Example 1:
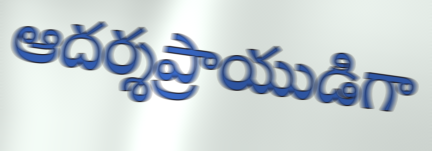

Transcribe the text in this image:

ఆదర్శప్రాయుడిగా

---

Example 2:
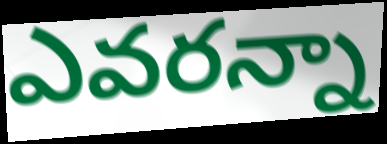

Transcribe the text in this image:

ఎవరన్నా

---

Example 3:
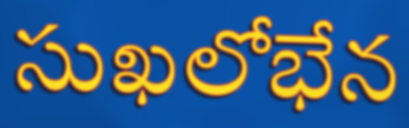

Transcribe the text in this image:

సుఖలోభేన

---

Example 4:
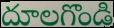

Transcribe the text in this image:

దూలగొండి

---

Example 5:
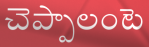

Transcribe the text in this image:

చెప్పాలంటె